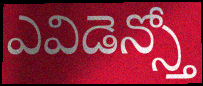
ఎవిడెన్స్తో